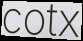
cotx